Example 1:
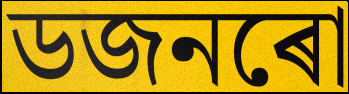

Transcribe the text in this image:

ডজনৰো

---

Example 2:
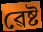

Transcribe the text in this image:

ৱেষ্ট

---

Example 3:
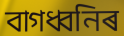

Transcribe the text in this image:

বাগধ্বনিৰ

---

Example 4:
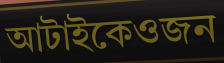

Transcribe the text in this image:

আটাইকেওজন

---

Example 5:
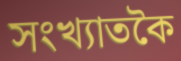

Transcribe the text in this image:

সংখ্যাতকৈ